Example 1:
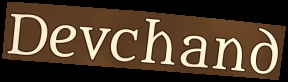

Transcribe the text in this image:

Devchand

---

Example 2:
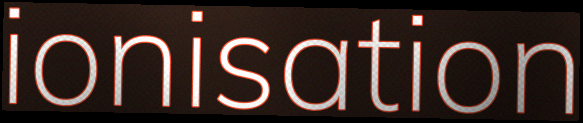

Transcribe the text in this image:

ionisation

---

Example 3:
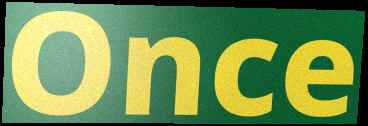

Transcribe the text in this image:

Once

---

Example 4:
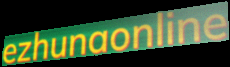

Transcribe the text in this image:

ezhunaonline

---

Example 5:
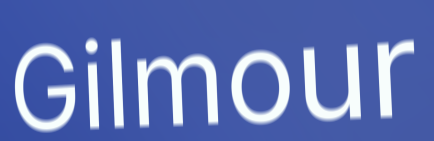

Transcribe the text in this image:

Gilmour